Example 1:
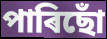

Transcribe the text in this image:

পাৰিছোঁ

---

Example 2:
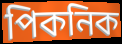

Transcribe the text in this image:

পিকনিক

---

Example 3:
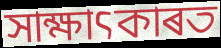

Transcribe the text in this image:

সাক্ষাৎকাৰত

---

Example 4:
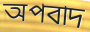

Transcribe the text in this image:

অপবাদ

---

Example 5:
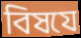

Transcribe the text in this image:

বিষযে